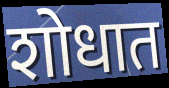
शोधात